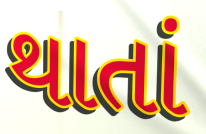
થાતાં